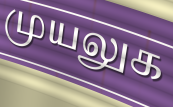
முயலுக